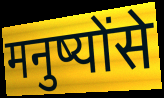
मनुष्योंसे